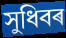
সুধিবৰ